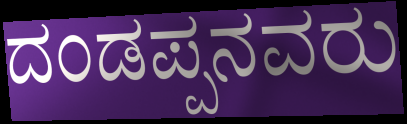
ದಂಡಪ್ಪನವರು